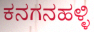
ಕನಗನಹಳ್ಳಿ